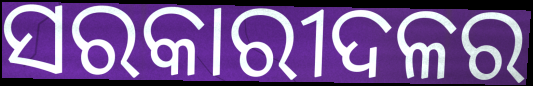
ସରକାରୀଦଳର